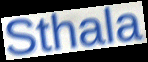
Sthala